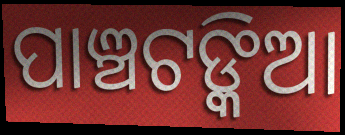
ପାଞ୍ଚଟଙ୍କିଆ